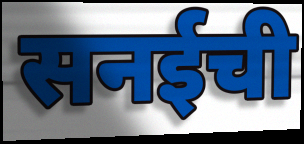
सनईची